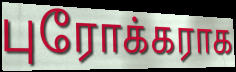
புரோக்கராக